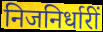
निजनिर्धारीं